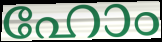
ഹോം